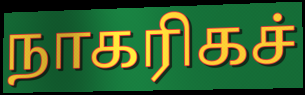
நாகரிகச்